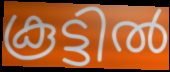
കൂട്ടിൽ